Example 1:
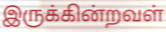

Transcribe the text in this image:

இருக்கின்றவள்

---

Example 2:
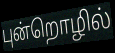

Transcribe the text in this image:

புன்றொழில்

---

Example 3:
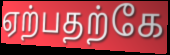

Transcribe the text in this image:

ஏற்பதற்கே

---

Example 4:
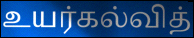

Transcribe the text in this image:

உயர்கல்வித்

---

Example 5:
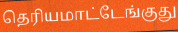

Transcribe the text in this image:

தெரியமாட்டேங்குது